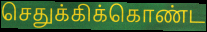
செதுக்கிக்கொண்ட